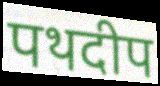
पथदीप